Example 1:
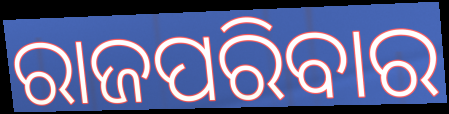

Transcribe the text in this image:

ରାଜପରିବାର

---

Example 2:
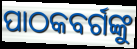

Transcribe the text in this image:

ପାଠକବର୍ଗଙ୍କୁ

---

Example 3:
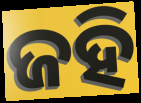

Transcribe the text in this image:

ଜହି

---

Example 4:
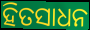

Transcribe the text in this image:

ହିତସାଧନ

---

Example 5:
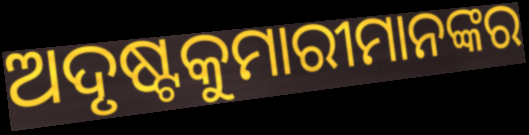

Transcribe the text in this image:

ଅଦୃଷ୍ଟକୁମାରୀମାନଙ୍କର